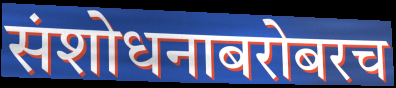
संशोधनाबरोबरच